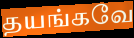
தயங்கவே